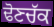
ਢੋਣਚੱਕ